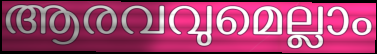
ആരവവുമെല്ലാം